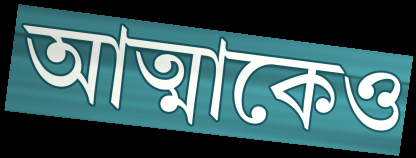
আত্মাকেও